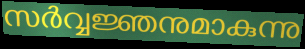
സർവ്വജ്ഞനുമാകുന്നു